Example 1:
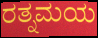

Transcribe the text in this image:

ರತ್ನಮಯ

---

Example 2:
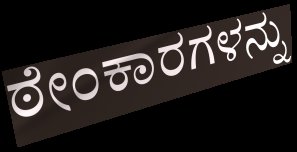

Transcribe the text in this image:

ಠೇಂಕಾರಗಳನ್ನು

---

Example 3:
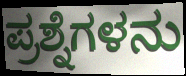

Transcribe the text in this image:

ಪ್ರಶ್ನೆಗಳನು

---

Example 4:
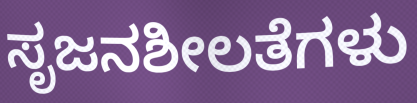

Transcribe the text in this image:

ಸೃಜನಶೀಲತೆಗಳು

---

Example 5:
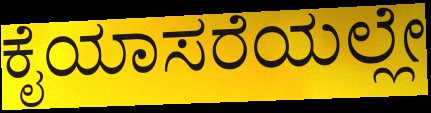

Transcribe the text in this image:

ಕೈಯಾಸರೆಯಲ್ಲೇ